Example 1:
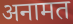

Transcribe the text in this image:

अनामत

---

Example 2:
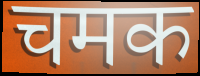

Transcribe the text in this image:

चमक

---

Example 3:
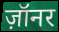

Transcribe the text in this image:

ज़ॉनर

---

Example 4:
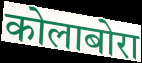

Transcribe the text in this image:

कोलाबोरा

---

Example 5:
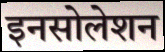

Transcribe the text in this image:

इनसोलेशन